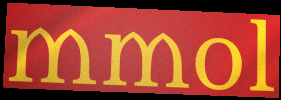
mmol